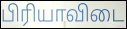
பிரியாவிடை